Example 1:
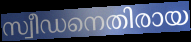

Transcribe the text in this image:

സ്വീഡനെതിരായ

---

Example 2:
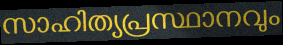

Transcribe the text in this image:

സാഹിത്യപ്രസ്ഥാനവും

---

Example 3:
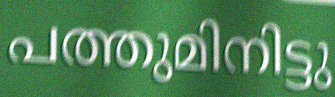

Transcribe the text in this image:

പത്തുമിനിട്ടു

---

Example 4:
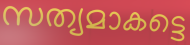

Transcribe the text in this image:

സത്യമാകട്ടെ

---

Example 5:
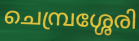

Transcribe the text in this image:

ചെമ്പ്രശ്ശേരി